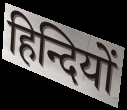
हिन्दियों